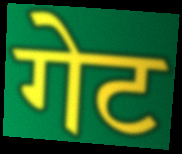
गेट